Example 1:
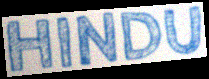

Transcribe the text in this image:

HINDU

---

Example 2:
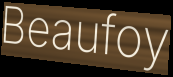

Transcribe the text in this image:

Beaufoy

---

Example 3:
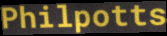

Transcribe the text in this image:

Philpotts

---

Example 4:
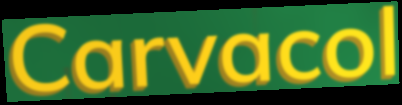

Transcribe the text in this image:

Carvacol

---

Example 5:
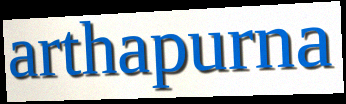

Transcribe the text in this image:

arthapurna